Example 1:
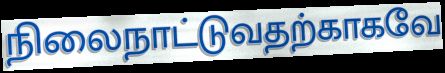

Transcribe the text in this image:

நிலைநாட்டுவதற்காகவே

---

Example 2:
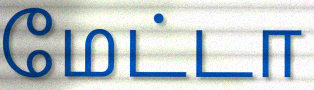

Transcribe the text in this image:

மேட்டா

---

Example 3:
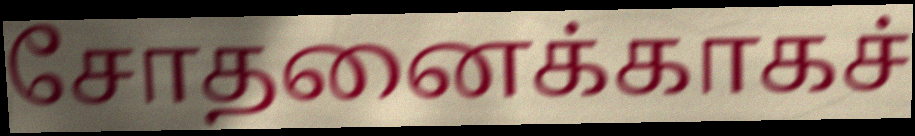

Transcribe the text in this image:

சோதனைக்காகச்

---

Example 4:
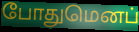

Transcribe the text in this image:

போதுமெனப்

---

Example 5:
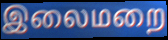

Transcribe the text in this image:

இலைமறை